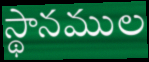
స్థానముల